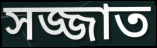
সজ্জাত